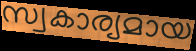
സ്വകാര്യമായ